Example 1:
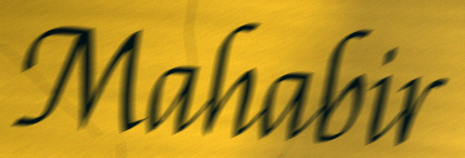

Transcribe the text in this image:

Mahabir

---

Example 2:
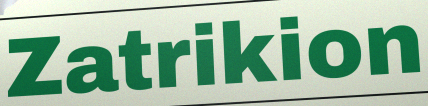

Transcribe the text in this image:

Zatrikion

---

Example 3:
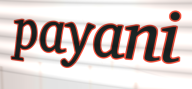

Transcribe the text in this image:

payani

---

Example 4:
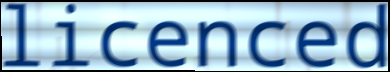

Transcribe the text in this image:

licenced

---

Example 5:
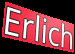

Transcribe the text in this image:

Erlich